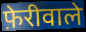
फ़ेरीवाले